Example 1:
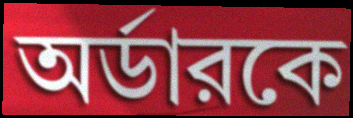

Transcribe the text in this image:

অর্ডারকে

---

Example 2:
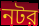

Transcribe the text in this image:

নটর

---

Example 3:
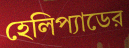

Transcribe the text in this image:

হেলিপ্যাডের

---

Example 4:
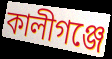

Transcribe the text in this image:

কালীগঞ্জে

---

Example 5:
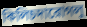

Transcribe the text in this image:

কিলিচদারোগলু